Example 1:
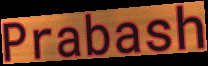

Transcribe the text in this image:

Prabash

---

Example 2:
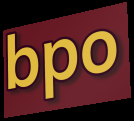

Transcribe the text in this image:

bpo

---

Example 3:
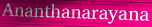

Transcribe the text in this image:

Ananthanarayana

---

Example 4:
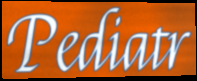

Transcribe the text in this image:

Pediatr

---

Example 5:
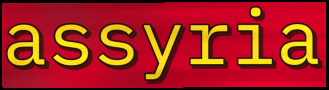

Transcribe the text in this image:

assyria